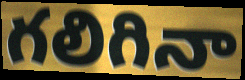
గలిగినా